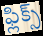
ఫ్లిక్స్